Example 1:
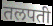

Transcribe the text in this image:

तलपती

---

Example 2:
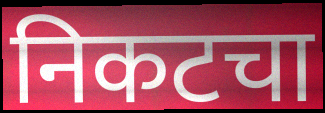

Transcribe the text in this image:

निकटचा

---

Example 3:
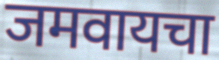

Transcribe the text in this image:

जमवायचा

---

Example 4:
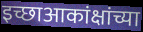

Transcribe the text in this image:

इच्छाआकांक्षांच्या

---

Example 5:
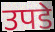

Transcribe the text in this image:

उपडे